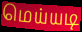
மெய்யடி